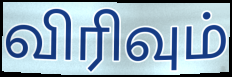
விரிவும்